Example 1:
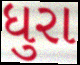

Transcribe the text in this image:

ધુરા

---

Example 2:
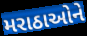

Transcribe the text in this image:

મરાઠાઓને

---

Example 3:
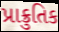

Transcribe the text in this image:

પ્રાક્રુતિક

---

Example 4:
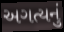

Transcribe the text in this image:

અગત્યનું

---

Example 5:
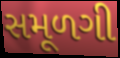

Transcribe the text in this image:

સમૂળગી